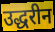
उद्धरीन